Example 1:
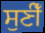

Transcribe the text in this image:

ਸੁਣੀਁ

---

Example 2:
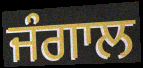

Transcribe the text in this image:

ਜੰਗਾਲ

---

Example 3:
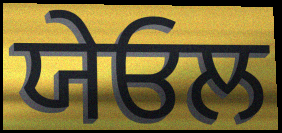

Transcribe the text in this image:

ਯੇਓਲ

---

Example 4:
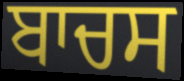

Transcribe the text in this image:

ਬਾਚਸ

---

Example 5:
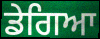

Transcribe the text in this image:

ਡੇਗਿਆ